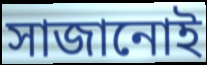
সাজানোই